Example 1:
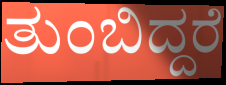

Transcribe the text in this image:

ತುಂಬಿದ್ದರೆ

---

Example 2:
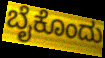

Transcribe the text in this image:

ಬೈಕೊಂದು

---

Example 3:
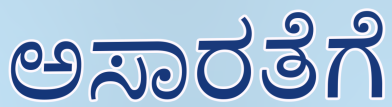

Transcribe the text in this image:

ಅಸಾರತೆಗೆ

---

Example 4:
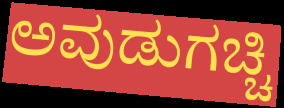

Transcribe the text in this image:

ಅವುಡುಗಚ್ಚಿ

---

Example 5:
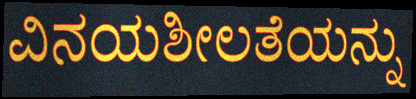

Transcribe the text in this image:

ವಿನಯಶೀಲತೆಯನ್ನು